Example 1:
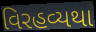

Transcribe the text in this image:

વિરહવ્યથા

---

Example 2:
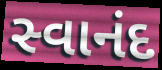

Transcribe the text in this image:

સ્વાનંદ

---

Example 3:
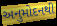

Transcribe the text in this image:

અનુમોદનથી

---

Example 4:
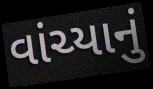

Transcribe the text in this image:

વાંચ્યાનું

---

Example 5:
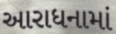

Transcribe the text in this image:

આરાધનામાં